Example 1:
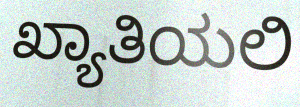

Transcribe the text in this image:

ಖ್ಯಾತಿಯಲಿ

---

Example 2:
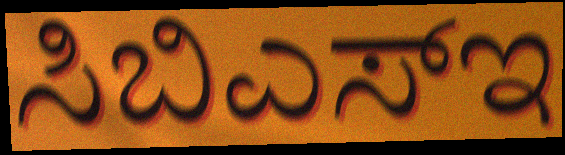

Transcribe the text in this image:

ಸಿಬಿಎಸ್ಇ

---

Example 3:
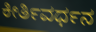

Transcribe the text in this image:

ಕೀರ್ತಿವರ್ಧನ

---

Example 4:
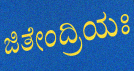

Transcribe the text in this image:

ಜಿತೇಂದ್ರಿಯಃ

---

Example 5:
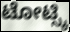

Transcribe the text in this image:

ಟೋಟ್ಸ್ಕಿ